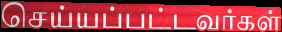
செய்யப்பட்டவர்கள்